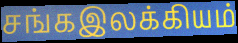
சங்கஇலக்கியம்